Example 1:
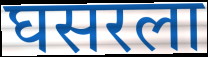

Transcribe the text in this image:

घसरला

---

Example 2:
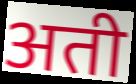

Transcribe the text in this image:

अती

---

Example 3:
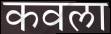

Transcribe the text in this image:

कवला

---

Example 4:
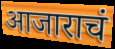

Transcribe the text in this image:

आजाराचं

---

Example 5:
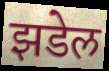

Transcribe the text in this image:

झडेल